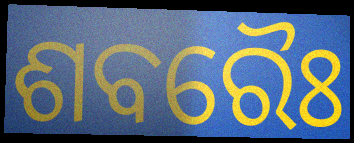
ଶବରୈଃ